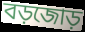
বড়জোড়